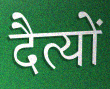
दैत्यों